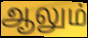
ஆலும்